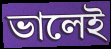
ভালেই